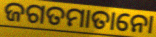
ଜଗତମାତାନୋ